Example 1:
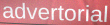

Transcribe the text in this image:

advertorial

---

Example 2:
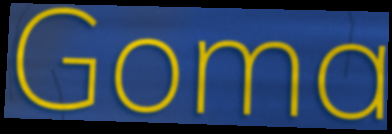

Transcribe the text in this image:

Goma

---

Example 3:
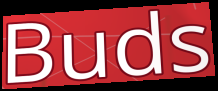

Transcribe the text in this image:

Buds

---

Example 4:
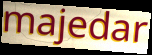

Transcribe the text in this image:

majedar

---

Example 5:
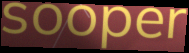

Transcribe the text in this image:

sooper